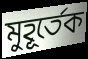
মুহূর্তেক